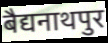
बैद्यनाथपुर